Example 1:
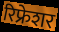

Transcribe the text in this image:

रिफ्रेशर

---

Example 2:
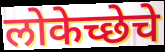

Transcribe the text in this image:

लोकेच्छेचे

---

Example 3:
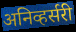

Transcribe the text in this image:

अनिव्हर्सरी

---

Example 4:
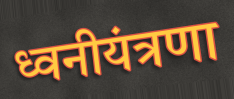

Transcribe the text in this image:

ध्वनीयंत्रणा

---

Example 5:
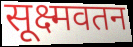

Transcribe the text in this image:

सूक्ष्मवतन